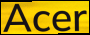
Acer